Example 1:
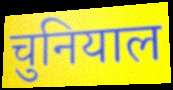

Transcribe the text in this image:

चुनियाल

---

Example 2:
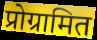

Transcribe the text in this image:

प्रोग्रामित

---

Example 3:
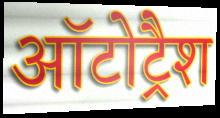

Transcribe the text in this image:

ऑटोट्रैश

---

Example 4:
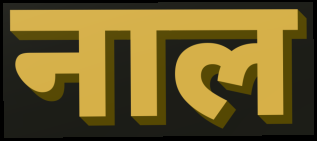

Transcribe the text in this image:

नाल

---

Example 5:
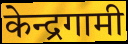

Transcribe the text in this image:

केन्द्रगामी